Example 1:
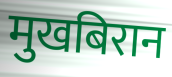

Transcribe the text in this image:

मुखबिरान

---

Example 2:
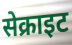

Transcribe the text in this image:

सेक्राइट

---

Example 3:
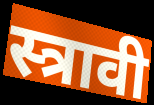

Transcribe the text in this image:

स्त्रावी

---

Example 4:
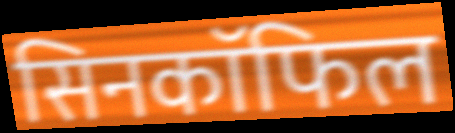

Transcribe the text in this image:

सिनकॉफिल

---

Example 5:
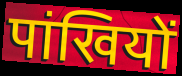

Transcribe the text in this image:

पांखियों